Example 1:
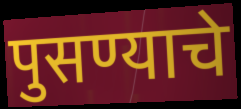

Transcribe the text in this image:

पुसण्याचे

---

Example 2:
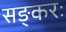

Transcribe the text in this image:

सङ्करः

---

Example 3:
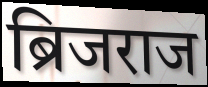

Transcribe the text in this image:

ब्रिजराज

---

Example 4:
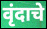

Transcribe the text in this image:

वृंदाचे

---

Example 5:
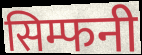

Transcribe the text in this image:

सिम्फनी